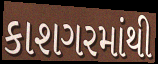
કાશગરમાંથી